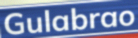
Gulabrao